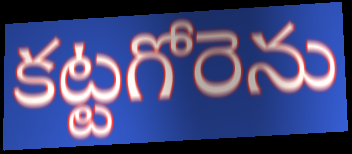
కట్టగోరెను